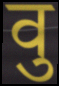
वु